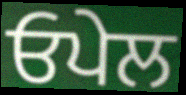
ਓਪੇਲ